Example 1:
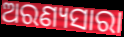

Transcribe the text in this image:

ଅରଣ୍ୟସାରା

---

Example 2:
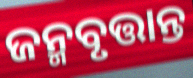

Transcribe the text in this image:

ଜନ୍ମବୃତ୍ତାନ୍ତ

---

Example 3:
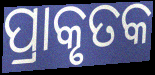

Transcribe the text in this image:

ପ୍ରାକୃତକ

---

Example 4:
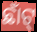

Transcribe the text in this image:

ଛାଁଟ୍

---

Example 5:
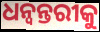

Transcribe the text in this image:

ଧନ୍ବନ୍ତରୀକୁ